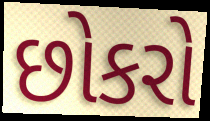
છોકરો